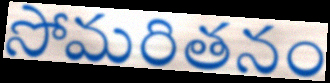
సోమరితనం